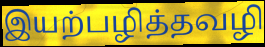
இயற்பழித்தவழி